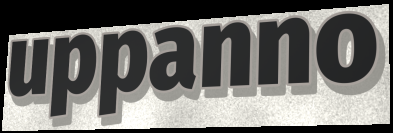
uppanno